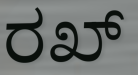
ರಖ್